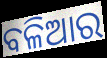
ବଳିଆର